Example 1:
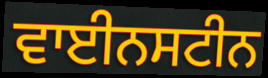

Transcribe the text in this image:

ਵਾਈਨਸਟੀਨ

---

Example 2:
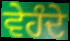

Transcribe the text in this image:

ਵੇਹੰਦੇ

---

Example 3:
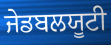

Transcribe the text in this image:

ਜੇਡਬਲਯੂਟੀ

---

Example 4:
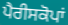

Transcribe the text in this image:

ਪੈਰੀਸਕੋਪਾਂ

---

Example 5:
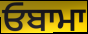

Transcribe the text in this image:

ਓਬਾਮਾ